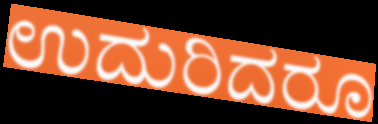
ಉದುರಿದರೂ